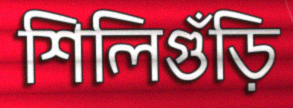
শিলিগুঁড়ি